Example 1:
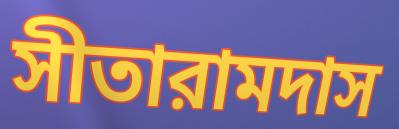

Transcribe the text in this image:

সীতারামদাস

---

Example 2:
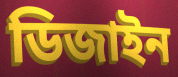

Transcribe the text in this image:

ডিজাইন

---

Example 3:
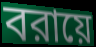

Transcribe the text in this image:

বরায়ে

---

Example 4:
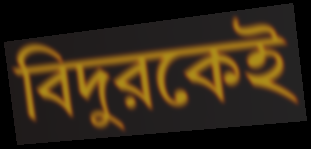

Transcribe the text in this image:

বিদুরকেই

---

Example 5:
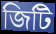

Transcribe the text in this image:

জিটি